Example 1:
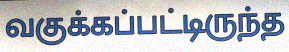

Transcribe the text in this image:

வகுக்கப்பட்டிருந்த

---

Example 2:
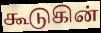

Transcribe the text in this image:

கூடுகின்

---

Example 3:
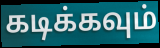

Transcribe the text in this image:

கடிக்கவும்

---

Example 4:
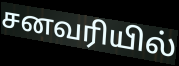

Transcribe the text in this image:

சனவரியில்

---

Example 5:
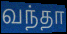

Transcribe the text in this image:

வந்தா